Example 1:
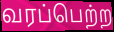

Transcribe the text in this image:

வரப்பெற்ற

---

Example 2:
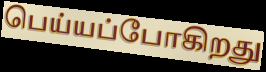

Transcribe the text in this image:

பெய்யப்போகிறது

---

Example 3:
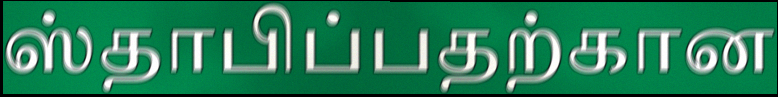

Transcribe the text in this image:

ஸ்தாபிப்பதற்கான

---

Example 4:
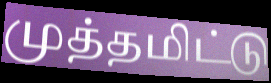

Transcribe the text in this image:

முத்தமிட்டு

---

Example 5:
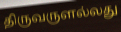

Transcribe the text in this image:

திருவருளல்லது